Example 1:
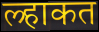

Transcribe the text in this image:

ल्हाकत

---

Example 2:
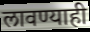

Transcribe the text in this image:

लावण्याही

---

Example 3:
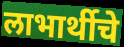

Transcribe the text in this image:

लाभार्थीचे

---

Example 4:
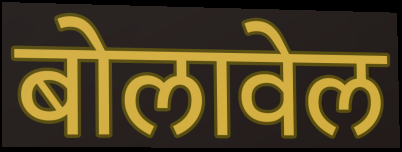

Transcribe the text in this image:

बोलावेल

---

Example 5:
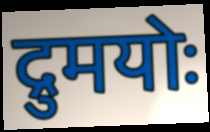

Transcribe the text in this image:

द्रुमयोः